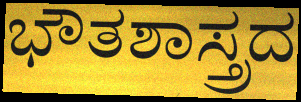
ಭೌತಶಾಸ್ತ್ರದ